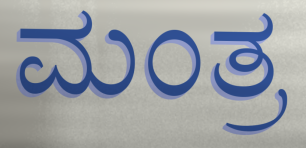
ಮಂತ್ರ